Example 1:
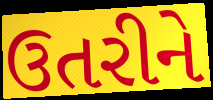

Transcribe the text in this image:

ઉતરીને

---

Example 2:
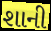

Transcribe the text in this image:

શાની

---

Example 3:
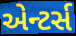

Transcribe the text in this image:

એન્ટર્સ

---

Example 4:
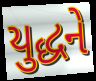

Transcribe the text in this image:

યુદ્ધને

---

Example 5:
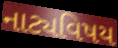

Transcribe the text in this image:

નાટ્યવિષય